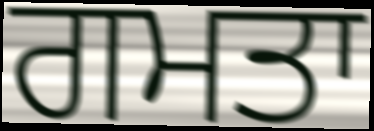
ਗਮਤਾ